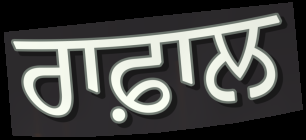
ਰਾਫ਼ਾਲ